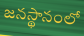
జనస్థానంలో